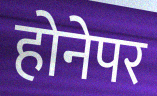
होनेपर